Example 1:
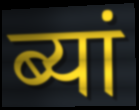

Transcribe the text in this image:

ब्यां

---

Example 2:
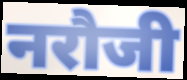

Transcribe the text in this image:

नरौजी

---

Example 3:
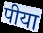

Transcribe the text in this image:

पीया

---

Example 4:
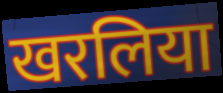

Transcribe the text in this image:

खरलिया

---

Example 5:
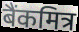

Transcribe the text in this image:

बैंकमित्र